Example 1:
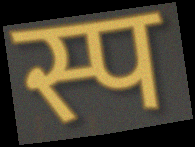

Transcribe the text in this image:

स्प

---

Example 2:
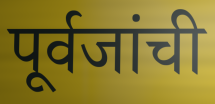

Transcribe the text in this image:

पूर्वजांची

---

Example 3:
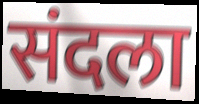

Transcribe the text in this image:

संदला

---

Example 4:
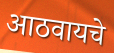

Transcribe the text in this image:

आठवायचे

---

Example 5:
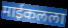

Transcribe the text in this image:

माईकलला